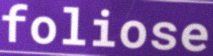
foliose